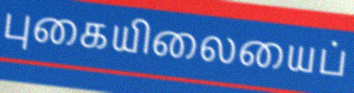
புகையிலையைப்